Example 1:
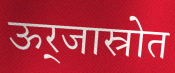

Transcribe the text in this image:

ऊर्जास्रोत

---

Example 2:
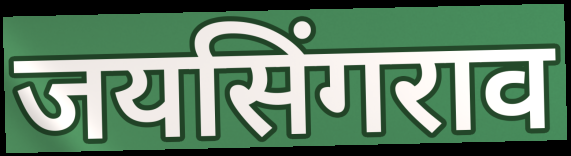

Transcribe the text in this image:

जयसिंगराव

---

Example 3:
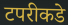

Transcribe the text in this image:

टपरीकडे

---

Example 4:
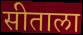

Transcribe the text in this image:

सीताला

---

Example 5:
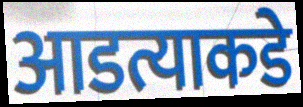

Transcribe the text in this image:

आडत्याकडे